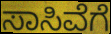
ಸಾಸಿವೆಗೆ